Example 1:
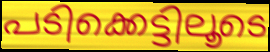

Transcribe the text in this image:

പടിക്കെട്ടിലൂടെ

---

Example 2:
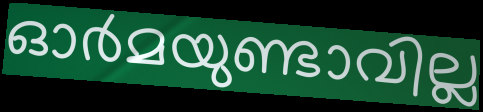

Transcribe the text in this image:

ഓർമയുണ്ടാവില്ല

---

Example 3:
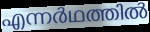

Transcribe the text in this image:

എന്നർഥത്തിൽ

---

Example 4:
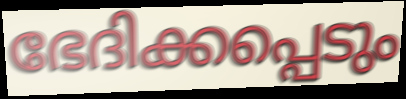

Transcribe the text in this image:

ഭേദിക്കപ്പെടും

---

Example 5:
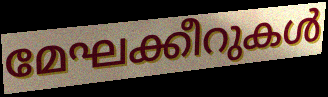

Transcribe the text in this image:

മേഘക്കീറുകൾ